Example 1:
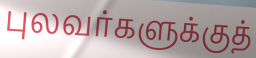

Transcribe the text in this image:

புலவர்களுக்குத்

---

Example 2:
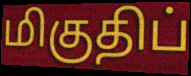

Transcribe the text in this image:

மிகுதிப்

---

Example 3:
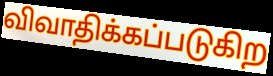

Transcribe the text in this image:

விவாதிக்கப்படுகிற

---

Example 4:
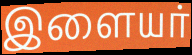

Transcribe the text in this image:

இளையர்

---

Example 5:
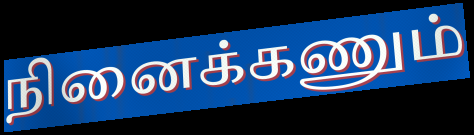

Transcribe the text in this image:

நினைக்கணும்